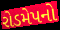
રોડમેપનો